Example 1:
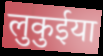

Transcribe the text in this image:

लुकुईया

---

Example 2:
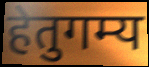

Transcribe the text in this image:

हेतुगम्य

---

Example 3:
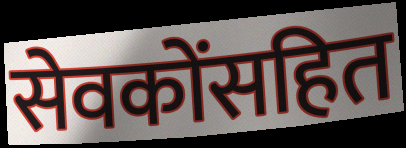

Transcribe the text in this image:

सेवकोंसहित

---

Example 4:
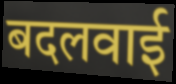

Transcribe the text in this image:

बदलवाई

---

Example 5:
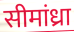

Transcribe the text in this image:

सीमांध्रा